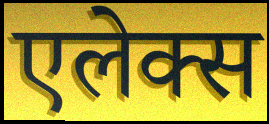
एलेक्स